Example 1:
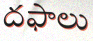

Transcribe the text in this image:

దఫాలు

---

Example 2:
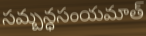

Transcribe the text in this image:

సమ్బన్ధసంయమాత్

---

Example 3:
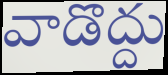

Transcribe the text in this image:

వాడొద్దు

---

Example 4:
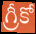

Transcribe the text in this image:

గ్రీకో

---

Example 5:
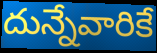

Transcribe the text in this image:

దున్నేవారికే